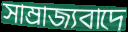
সাম্ৰাজ্যবাদে